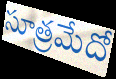
సూత్రమేదో